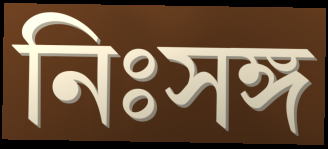
নিঃসঙ্গ